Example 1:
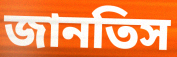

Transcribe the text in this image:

জানতিস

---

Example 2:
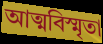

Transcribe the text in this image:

আত্মবিস্মৃতা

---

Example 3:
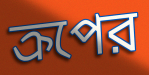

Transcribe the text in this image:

ক্রপের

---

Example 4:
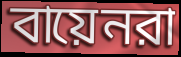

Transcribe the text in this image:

বায়েনরা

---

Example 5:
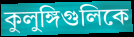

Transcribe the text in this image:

কুলুঙ্গিগুলিকে